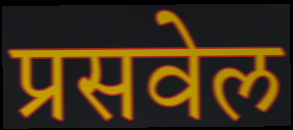
प्रसवेल